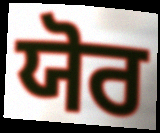
ਯੋਰ